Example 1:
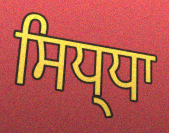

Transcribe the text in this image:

ਸਿਧ੍ਧਾ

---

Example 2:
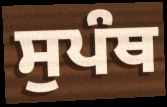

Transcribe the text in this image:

ਸੁਪੰਥ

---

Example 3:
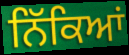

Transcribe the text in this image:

ਨਿੱਕਿਆਂ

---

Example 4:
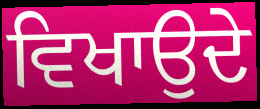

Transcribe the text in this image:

ਵਿਖਾਉਦੇ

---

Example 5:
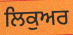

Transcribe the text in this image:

ਲਿਕੁਅਰ